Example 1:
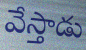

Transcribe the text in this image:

వేస్తాడు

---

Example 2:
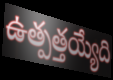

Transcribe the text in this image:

ఉత్పత్తయ్యేది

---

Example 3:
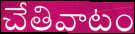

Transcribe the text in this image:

చేతివాటం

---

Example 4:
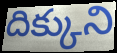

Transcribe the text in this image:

దిక్కుని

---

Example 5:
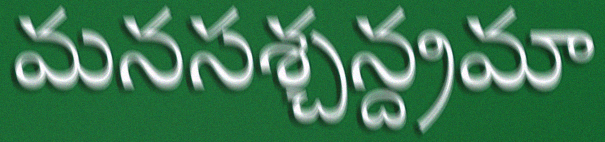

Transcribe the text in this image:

మనసశ్చన్ద్రమా